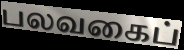
பலவகைப்